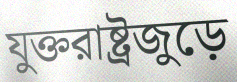
যুক্তরাষ্ট্রজুড়ে